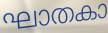
ഘാതകാ